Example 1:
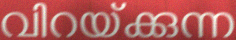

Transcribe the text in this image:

വിറയ്‌ക്കുന്ന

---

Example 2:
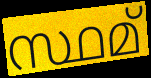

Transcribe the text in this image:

സ്ഥമ്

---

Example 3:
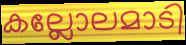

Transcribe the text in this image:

കല്ലോലമാടി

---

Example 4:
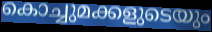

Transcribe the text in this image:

കൊച്ചുമക്കളുടെയും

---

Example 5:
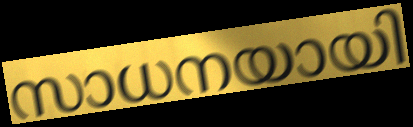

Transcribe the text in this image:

സാധനയായി